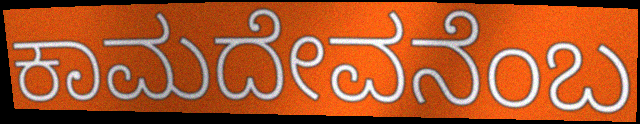
ಕಾಮದೇವನೆಂಬ